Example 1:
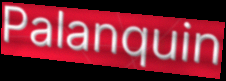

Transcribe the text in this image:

Palanquin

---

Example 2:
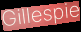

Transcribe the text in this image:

Gillespie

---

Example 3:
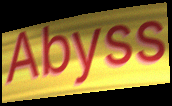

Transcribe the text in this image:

Abyss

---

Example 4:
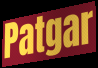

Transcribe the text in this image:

Patgar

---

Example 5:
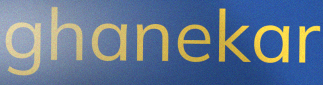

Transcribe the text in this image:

ghanekar